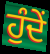
ਹੁੰਦੇਂ